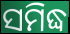
ସମିଦ୍ଧ